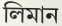
লিমান